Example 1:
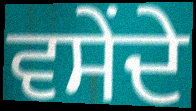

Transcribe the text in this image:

ਵਸੇਂਦੇ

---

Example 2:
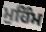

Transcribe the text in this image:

ਮੁਹਿੰਮ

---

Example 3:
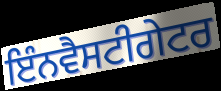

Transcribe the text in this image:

ਇੰਨਵੈਸਟੀਗੇਟਰ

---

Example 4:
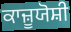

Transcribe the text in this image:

ਕਾਜ਼ੂਯੋਸ਼ੀ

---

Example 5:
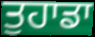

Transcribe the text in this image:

ਤੁਹਾਡਾ